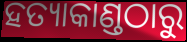
ହତ୍ୟାକାଣ୍ଡଠାରୁ